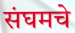
संघमचे